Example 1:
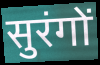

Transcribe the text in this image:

सुरंगों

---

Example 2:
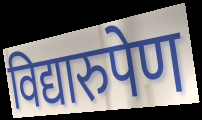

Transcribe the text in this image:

विद्यारुपेण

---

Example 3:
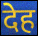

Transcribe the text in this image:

देह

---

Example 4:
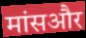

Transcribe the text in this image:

मांसऔर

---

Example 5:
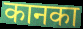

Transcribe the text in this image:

कानका